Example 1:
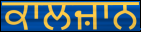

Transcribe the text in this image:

ਕਾਲਜ਼ਾਨ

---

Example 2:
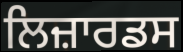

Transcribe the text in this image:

ਲਿਜ਼ਾਰਡਸ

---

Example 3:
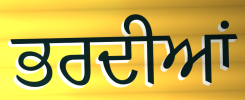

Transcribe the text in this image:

ਭਰਦੀਆਂ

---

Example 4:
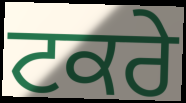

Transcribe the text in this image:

ਟਕਰੇ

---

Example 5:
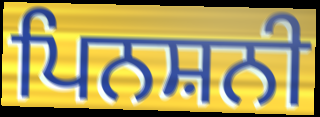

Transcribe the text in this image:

ਪਿਨਸ਼ਨੀ